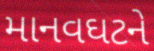
માનવઘટને